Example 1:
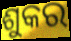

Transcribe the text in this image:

ଶୁକର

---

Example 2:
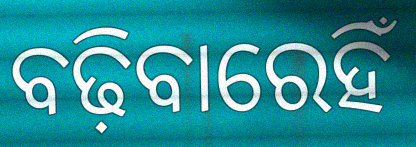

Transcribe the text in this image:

ବଢ଼ିବାରେହିଁ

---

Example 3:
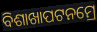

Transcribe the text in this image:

ବିଶାଖାପଟନମ୍ରେ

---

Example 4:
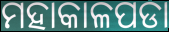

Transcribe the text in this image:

ମହାକାଳପଡା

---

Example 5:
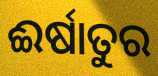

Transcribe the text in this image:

ଈର୍ଷାତୁର